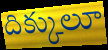
దిక్కులూ